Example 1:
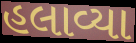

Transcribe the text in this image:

હલાવ્યા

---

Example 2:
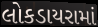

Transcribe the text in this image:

લોકડાયરામાં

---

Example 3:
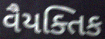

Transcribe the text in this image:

વૈયક્તિક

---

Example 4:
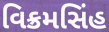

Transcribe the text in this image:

વિક્રમસિંહ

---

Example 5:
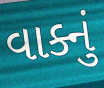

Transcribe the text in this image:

વાક્નું